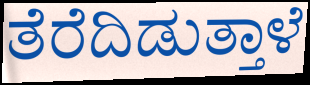
ತೆರೆದಿಡುತ್ತಾಳೆ